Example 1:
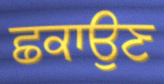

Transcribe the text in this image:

ਛਕਾਉਣ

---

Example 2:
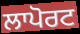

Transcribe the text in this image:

ਲਾਪੋਰਟ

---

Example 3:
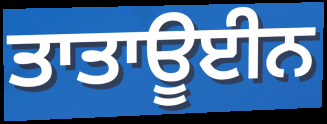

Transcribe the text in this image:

ਤਾਤਾਊਈਨ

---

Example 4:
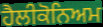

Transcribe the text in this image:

ਹੈਲੀਕੋਨਿਅਮ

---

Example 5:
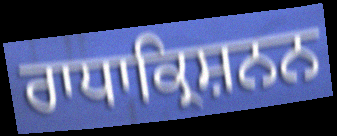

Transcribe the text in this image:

ਰਾਧਾਕ੍ਰਿਸ਼ਨਨ